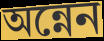
অন্নেন